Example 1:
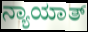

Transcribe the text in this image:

ನ್ಯಾಯಾತ್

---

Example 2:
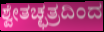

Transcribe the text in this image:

ಶ್ವೇತಚ್ಛತ್ರದಿಂದ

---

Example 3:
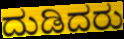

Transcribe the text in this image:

ದುಡಿದರು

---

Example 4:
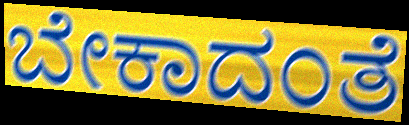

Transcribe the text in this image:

ಬೇಕಾದಂತೆ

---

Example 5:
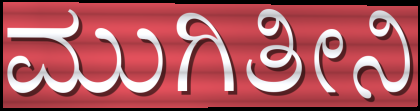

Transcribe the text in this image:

ಮುಗಿತೀನಿ